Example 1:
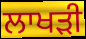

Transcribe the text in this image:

ਲਾਖੜੀ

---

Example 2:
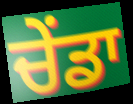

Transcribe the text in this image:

ਚੇਂਡਾ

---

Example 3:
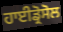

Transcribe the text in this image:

ਹਾਈਡ੍ਰੋਸੋਲ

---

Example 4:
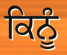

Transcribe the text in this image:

ਕਿਨੂੰ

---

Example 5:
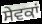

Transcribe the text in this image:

ਸੇਵਕਾਂ